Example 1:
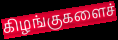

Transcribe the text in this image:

கிழங்குகளைச்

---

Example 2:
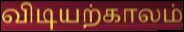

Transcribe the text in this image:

விடியற்காலம்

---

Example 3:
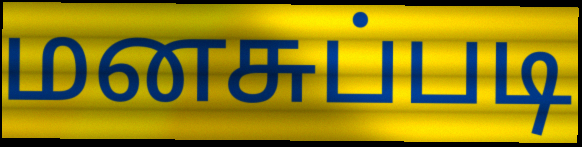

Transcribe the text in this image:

மனசுப்படி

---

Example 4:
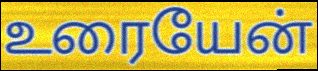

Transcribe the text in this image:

உரையேன்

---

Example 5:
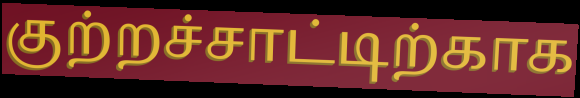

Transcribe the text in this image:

குற்றச்சாட்டிற்காக